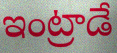
ఇంట్రాడే